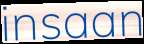
insaan